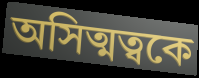
অসিত্মত্বকে